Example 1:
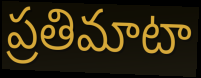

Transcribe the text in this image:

ప్రతిమాటా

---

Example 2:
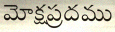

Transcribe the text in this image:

మోక్షప్రదము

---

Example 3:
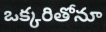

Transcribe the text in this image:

ఒక్కరితోనూ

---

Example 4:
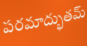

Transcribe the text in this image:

పరమాద్భుతమ్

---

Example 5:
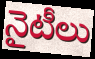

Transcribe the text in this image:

నైటీలు